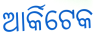
ଆର୍କିଟେକ